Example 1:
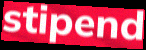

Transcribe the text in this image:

stipend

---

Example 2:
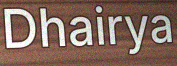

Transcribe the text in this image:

Dhairya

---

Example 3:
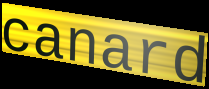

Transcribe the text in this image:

canard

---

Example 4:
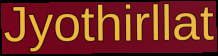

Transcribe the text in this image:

Jyothirllat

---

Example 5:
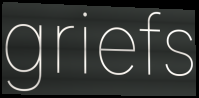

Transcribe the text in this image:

griefs